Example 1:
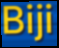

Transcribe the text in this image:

Biji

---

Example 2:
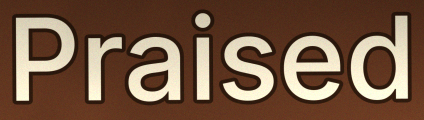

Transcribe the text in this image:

Praised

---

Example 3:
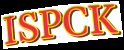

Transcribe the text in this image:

ISPCK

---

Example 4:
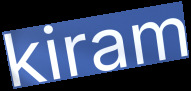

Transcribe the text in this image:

kiram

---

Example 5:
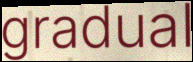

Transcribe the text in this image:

gradual